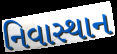
નિવાસ્થાન